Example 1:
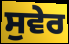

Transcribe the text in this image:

ਸੁਵੇਰ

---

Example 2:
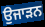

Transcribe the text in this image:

ਉਜਾੜਨ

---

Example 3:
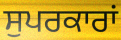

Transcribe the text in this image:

ਸੁਪਰਕਾਰਾਂ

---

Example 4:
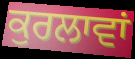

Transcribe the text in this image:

ਕੁਰਲਾਵਾਂ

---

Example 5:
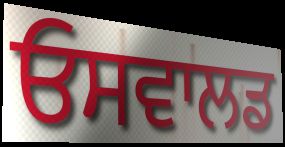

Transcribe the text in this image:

ਓਸਵਾਲਡ